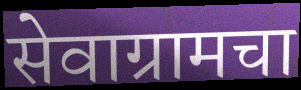
सेवाग्रामचा